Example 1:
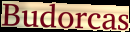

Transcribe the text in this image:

Budorcas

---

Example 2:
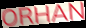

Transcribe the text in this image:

ORHAN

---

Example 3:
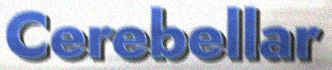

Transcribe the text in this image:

Cerebellar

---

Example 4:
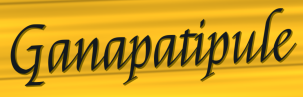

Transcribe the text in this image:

Ganapatipule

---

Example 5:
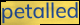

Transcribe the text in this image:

petalled